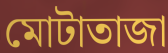
মোটাতাজা